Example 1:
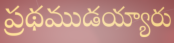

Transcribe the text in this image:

ప్రథముడయ్యారు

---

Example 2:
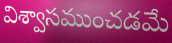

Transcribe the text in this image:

విశ్వాసముంచడమే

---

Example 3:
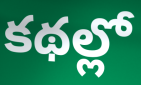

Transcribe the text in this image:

కథల్లో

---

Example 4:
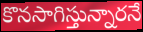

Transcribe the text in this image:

కొనసాగిస్తున్నారనే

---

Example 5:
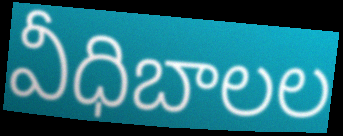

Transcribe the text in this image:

వీధిబాలల